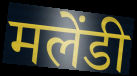
मलेंडी